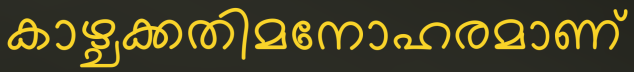
കാഴ്ചക്കതിമനോഹരമാണ്